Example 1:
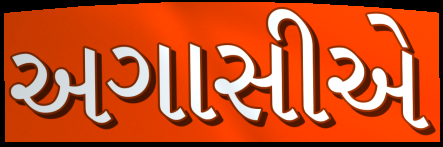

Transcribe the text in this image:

અગાસીએ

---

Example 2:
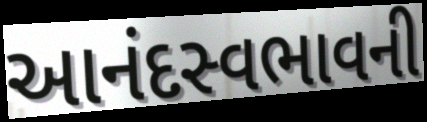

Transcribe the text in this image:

આનંદસ્વભાવની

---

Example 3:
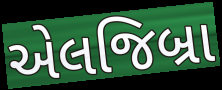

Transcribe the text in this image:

એલજિબ્રા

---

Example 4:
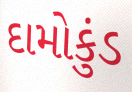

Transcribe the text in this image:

દામોકુંડ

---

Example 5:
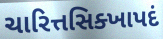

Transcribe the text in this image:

ચારિત્તસિક્ખાપદં